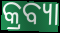
କ୍ରବ୍ୟା